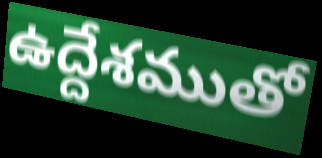
ఉద్దేశముతో